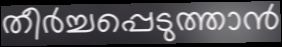
തീർച്ചപ്പെടുത്താൻ